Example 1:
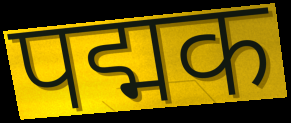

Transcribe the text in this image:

पद्मक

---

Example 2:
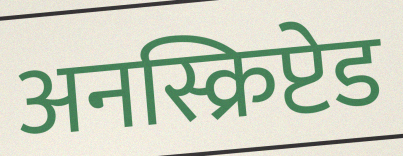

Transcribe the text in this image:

अनस्क्रिप्टेड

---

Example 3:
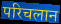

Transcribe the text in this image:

परिचलान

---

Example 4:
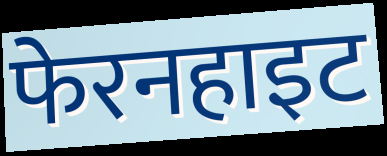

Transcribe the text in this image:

फेरनहाइट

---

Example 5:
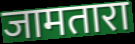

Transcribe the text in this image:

जामतारा